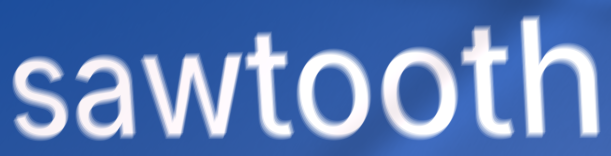
sawtooth